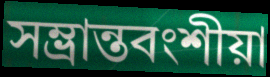
সম্ভ্রান্তবংশীয়া